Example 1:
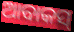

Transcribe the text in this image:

ଆବାକସ୍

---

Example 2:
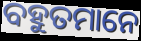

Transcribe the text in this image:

ବହୁତମାନେ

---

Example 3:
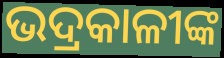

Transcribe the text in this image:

ଭଦ୍ରକାଳୀଙ୍କ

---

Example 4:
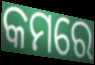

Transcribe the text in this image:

କମରେ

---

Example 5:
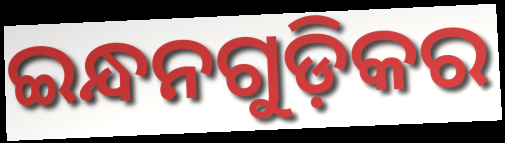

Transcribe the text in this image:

ଇନ୍ଧନଗୁଡ଼ିକର